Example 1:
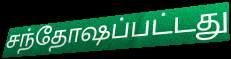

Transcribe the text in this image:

சந்தோஷப்பட்டது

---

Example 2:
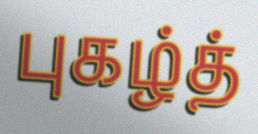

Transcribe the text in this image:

புகழ்த்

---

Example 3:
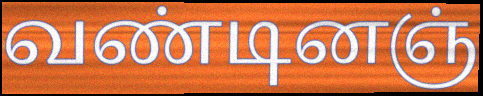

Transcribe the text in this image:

வண்டினஞ்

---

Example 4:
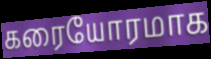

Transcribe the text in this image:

கரையோரமாக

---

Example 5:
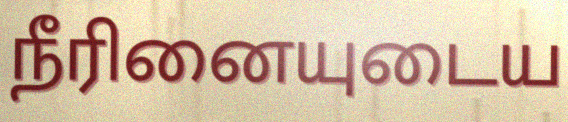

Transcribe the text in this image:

நீரினையுடைய